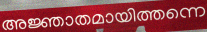
അജ്ഞാതമായിത്തന്നെ